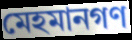
মেহমানগণ